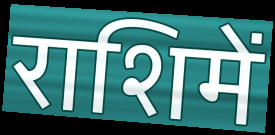
राशिमें